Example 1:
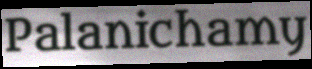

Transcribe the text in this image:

Palanichamy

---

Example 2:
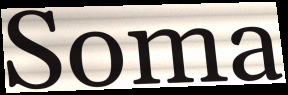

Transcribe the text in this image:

Soma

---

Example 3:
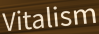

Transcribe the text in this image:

Vitalism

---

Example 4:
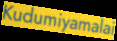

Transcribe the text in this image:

Kudumiyamalai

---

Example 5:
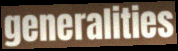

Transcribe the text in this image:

generalities